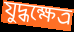
যুদ্ধক্ষেত্র